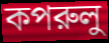
কপরুলু